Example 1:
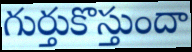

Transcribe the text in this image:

గుర్తుకొస్తుందా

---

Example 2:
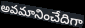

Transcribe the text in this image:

అవమానించేదిగా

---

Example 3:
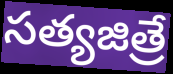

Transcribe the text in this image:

సత్యజిత్రే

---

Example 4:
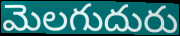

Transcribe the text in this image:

మెలగుదురు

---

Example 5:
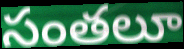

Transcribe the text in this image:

సంతలూ